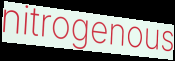
nitrogenous